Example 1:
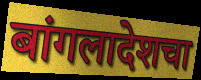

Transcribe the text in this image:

बांगलादेशचा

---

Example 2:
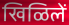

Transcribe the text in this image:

खिळिलें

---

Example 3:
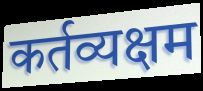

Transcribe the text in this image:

कर्तव्यक्षम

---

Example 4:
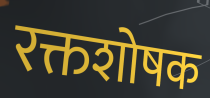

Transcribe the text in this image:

रक्तशोषक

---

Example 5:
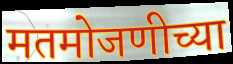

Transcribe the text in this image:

मतमोजणीच्या